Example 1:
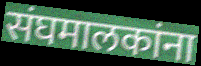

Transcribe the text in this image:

संघमालकांना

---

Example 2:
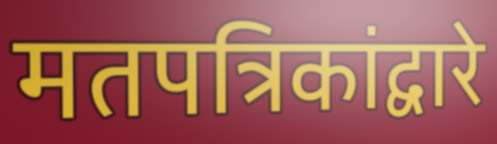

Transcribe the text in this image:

मतपत्रिकांद्वारे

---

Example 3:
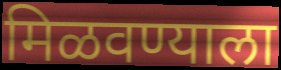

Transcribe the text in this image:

मिळवण्याला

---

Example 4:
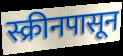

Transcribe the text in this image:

स्क्रीनपासून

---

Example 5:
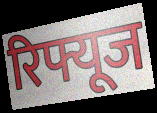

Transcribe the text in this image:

रिफ्यूज